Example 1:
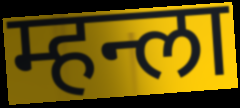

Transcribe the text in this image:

म्हन्ला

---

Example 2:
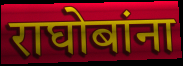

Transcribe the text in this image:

राघोबांना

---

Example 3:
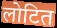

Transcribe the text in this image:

लोटित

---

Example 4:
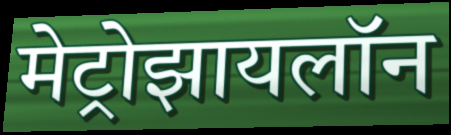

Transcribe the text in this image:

मेट्रोझायलॉन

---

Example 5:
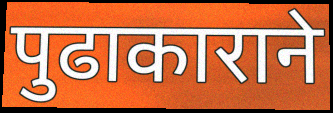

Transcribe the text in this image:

पुढाकाराने